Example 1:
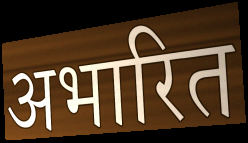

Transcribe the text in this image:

अभारित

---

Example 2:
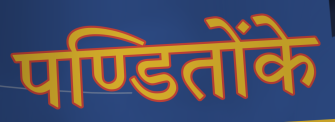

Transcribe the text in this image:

पण्डितोंके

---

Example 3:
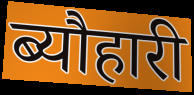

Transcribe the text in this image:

ब्यौहारी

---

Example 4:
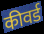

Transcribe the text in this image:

कीवर्ड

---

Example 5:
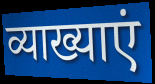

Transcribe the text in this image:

व्याख्याएं